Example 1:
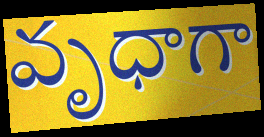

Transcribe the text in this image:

వృధాగా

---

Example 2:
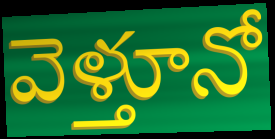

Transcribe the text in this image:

వెళ్తూనో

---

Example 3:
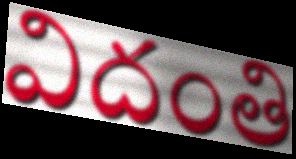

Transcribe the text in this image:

విదంతి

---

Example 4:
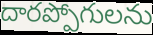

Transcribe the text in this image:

దారప్పోగులను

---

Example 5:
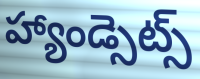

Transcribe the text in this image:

హ్యాండ్సెట్స్